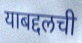
याबद्दलची